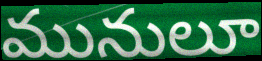
మునులూ